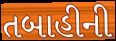
તબાહીની